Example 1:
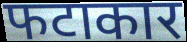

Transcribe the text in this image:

फटाकार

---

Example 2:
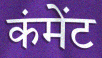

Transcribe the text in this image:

कंमेंट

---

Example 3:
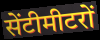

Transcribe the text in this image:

सेंटीमीटरों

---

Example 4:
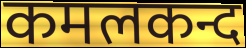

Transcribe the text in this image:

कमलकन्द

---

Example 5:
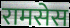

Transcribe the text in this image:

रामसेस